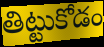
తిట్టుకోడం